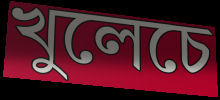
খুলেচে